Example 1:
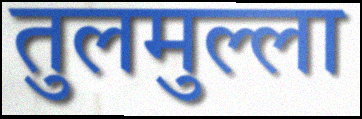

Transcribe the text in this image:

तुलमुल्ला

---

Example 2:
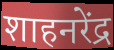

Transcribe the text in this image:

शाहनरेंद्र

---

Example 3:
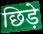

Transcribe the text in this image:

छिड़े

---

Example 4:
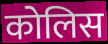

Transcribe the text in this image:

कोलिस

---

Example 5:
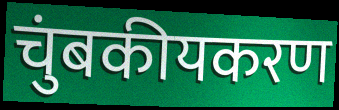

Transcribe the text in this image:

चुंबकीयकरण